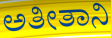
ಅತೀತಾನಿ